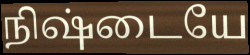
நிஷ்டையே